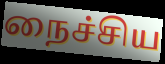
நைச்சிய